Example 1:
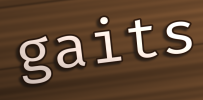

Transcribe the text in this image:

gaits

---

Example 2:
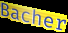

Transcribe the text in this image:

Bacher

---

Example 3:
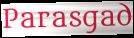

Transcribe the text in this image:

Parasgad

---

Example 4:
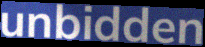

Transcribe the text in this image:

unbidden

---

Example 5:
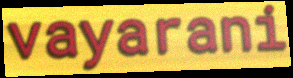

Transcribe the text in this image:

vayarani